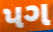
પગ